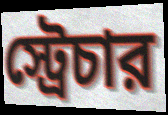
স্ট্রেচার